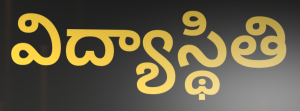
విద్యాస్థితి